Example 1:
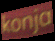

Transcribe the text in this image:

konja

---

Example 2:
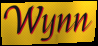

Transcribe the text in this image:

Wynn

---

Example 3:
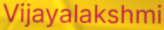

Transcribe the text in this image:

Vijayalakshmi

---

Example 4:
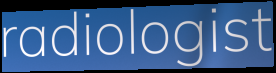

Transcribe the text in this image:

radiologist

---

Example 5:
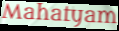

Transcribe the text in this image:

Mahatyam